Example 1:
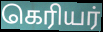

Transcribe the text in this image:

கெரியர்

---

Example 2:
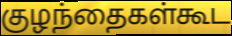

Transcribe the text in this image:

குழந்தைகள்கூட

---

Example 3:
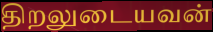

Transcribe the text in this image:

திறலுடையவன்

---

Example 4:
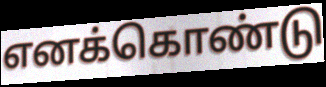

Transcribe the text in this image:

எனக்கொண்டு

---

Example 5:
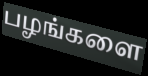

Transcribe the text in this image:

பழங்களை